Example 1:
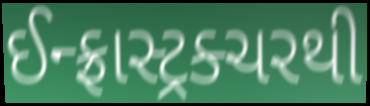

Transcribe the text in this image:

ઈન્ફ્રાસ્ટ્રક્ચરથી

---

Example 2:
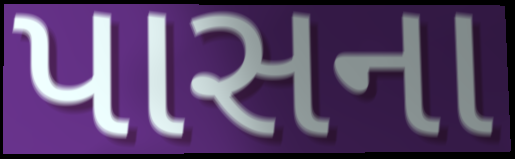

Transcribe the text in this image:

પાસના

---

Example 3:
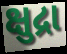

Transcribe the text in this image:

ક્ષુદ્રા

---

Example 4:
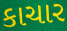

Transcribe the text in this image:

કાચાર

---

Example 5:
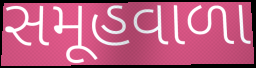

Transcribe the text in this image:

સમૂહવાળા